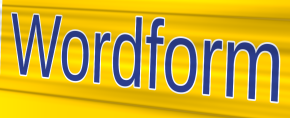
Wordform